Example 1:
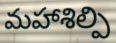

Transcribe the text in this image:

మహాశిల్పి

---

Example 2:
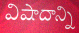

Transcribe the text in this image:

విషాదాన్ని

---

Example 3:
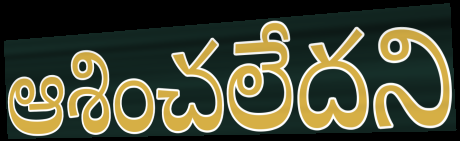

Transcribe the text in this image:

ఆశించలేదని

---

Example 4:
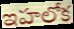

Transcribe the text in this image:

ఇహలోక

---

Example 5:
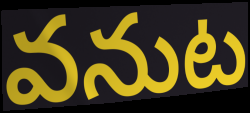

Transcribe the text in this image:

వనుట